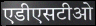
एडीएसटीओ